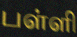
பள்ளி